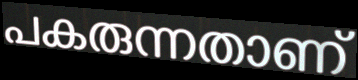
പകരുന്നതാണ്